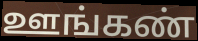
ஊங்கண்